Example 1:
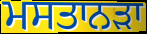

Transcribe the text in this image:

ਮਸਤਾਨੜਾ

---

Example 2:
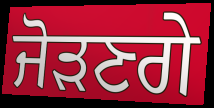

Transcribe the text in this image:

ਜੋੜਣਗੇ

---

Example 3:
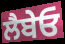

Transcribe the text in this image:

ਲੈਬੇਓ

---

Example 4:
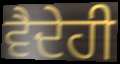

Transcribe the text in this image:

ਵੈਦੇਹੀ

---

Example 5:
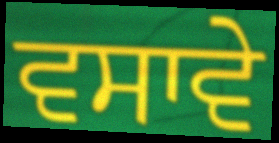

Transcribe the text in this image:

ਵਸਾਵੇ